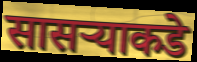
सासऱ्याकडे